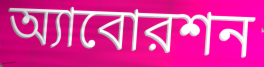
অ্যাবোরশন